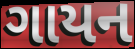
ગાયન